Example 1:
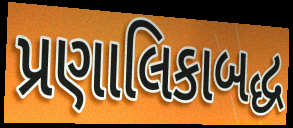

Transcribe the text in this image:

પ્રણાલિકાબદ્ધ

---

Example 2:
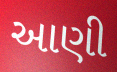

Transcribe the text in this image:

આણી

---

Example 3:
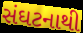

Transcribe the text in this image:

સંઘટનાથી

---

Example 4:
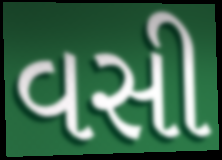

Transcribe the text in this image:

વસી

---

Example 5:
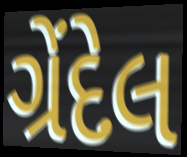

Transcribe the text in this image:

ગ્રેંદેલ